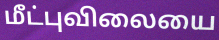
மீட்புவிலையை